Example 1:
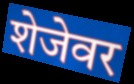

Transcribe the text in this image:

शेजेवर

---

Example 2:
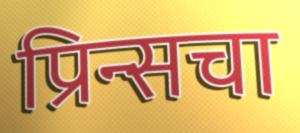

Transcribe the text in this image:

प्रिन्सचा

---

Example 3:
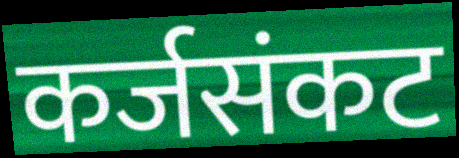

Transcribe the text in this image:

कर्जसंकट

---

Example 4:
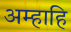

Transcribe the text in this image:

अम्हाहि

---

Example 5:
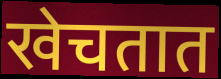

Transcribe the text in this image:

खेचतात